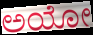
ಅಯೋ